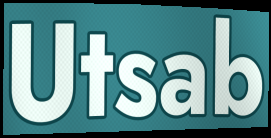
Utsab